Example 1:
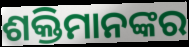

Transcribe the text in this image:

ଶକ୍ତିମାନଙ୍କର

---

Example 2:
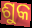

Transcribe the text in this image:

ଶୁକ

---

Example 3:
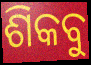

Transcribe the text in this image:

ଶିକବୁ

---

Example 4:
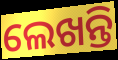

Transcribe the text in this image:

ଲେଖନ୍ତି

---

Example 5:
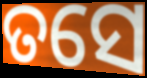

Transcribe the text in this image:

ତସେ